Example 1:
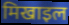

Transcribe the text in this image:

मिखाइल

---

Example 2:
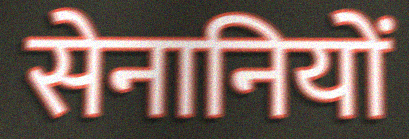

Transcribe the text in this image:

सेनानियों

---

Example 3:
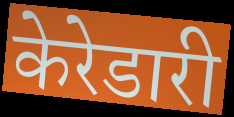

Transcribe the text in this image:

केरेडारी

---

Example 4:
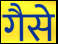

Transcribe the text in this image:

गैसे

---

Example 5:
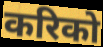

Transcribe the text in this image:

करिको